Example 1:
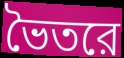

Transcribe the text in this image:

ভৈতরে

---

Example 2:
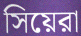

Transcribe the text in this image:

সিয়েরা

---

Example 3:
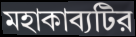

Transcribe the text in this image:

মহাকাব্যটির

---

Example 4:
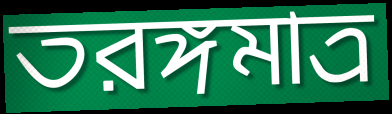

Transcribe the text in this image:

তরঙ্গমাত্র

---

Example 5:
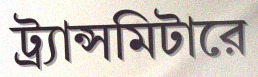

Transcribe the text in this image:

ট্র্যান্সমিটারে